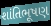
શાંતિભૂષણ